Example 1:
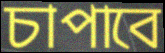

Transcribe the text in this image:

চাপাবে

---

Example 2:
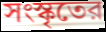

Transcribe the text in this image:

সংস্কৃতের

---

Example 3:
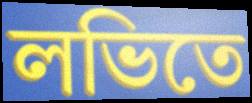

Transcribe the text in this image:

লভিতে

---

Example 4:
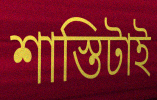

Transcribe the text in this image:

শাস্তিটাই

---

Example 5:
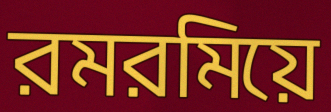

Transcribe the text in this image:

রমরমিয়ে